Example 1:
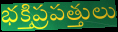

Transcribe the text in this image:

భక్తిప్రపత్తులు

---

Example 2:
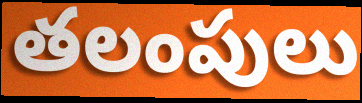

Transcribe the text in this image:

తలంపులు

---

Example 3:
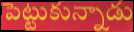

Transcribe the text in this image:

పెట్టుకున్నాడు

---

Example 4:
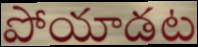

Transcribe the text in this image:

పోయాడట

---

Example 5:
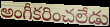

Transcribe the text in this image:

అంగీకరించలేడు